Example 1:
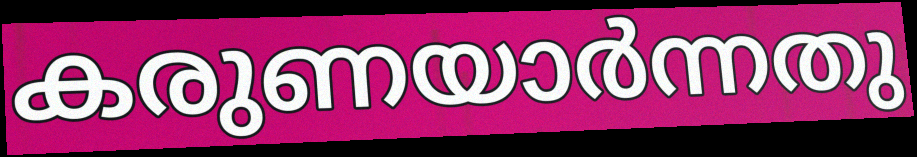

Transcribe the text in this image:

കരുണയാർന്നതു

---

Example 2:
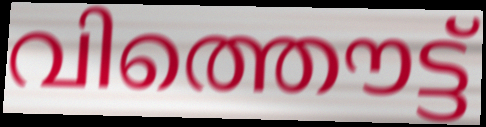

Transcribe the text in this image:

വിത്തൌട്ട്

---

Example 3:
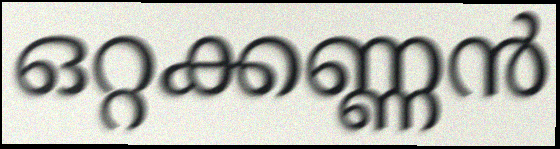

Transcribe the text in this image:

ഒറ്റക്കണ്ണൻ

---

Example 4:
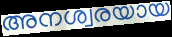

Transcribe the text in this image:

അനശ്വരയായ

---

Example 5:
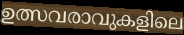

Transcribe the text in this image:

ഉത്സവരാവുകളിലെ